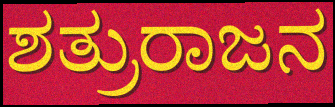
ಶತ್ರುರಾಜನ